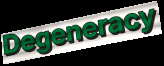
Degeneracy